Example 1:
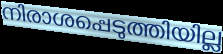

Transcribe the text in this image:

നിരാശപ്പെടുത്തിയില്ല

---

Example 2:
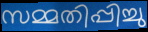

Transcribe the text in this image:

സമ്മതിപ്പിച്ചു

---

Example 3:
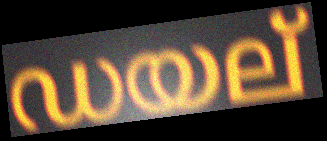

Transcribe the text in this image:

ഡയല്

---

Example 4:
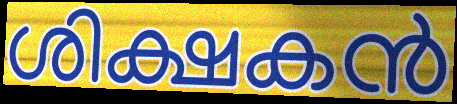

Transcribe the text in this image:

ശിക്ഷകൻ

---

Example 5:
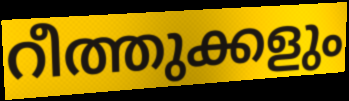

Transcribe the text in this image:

റീത്തുക്കളും